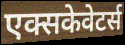
एक्सकेवेटर्स